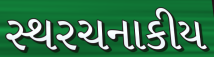
સ્થરચનાકીય